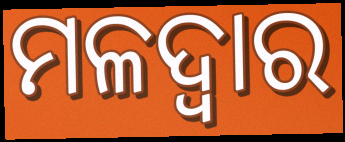
ମଳଦ୍ୱାର